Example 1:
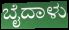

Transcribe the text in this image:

ಬೈದಾಳು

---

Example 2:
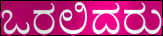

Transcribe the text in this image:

ಒರಲಿದರು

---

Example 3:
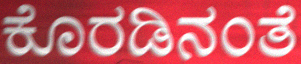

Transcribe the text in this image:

ಕೊರಡಿನಂತೆ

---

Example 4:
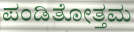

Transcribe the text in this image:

ಪಂಡಿತೋತ್ತಮ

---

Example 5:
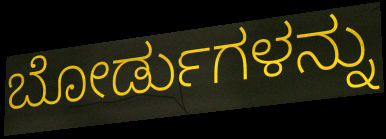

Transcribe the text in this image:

ಬೋರ್ಡುಗಳನ್ನು